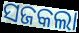
ସଜକଲା